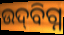
ଉଦ୍‌ବିଗ୍ନ